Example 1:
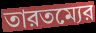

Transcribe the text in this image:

তারতম্যের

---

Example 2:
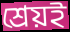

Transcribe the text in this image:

শ্রেয়ই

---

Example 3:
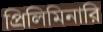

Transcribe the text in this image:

প্রিলিমিনারি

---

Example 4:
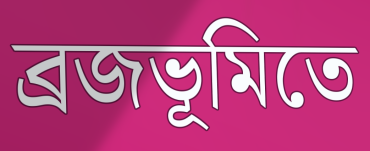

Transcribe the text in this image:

ব্রজভূমিতে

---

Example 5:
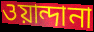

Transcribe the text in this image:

ওয়ান্দানা